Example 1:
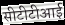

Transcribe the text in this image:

सीटीटीआई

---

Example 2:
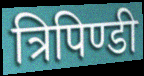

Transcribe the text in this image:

त्रिपिण्डी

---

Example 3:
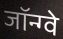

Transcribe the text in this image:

जॉन्ग्वे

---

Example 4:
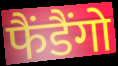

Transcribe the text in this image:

फैंडैंगो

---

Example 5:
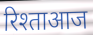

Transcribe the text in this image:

रिश्ताआज